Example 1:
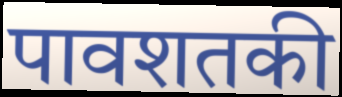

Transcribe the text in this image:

पावशतकी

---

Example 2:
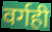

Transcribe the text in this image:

वर्गही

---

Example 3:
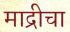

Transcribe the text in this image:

माद्रीचा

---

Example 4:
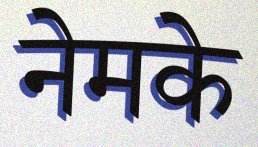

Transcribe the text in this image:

नेमके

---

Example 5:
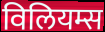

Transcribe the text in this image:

विलियम्स